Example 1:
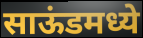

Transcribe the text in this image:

साऊंडमध्ये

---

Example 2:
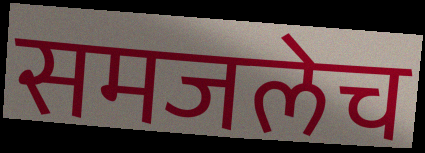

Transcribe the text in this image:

समजलेच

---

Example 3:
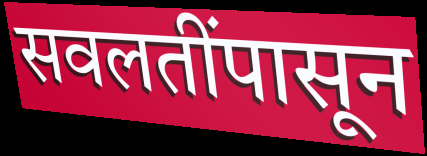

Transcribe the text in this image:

सवलतींपासून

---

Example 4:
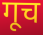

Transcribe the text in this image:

गूच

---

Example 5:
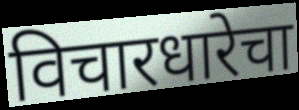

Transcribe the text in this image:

विचारधारेचा